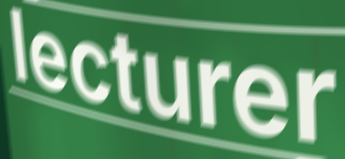
lecturer